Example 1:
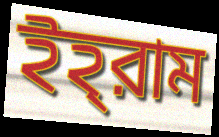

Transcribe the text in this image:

ইহ্‌রাম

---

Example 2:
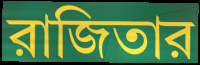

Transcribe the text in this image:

রাজিতার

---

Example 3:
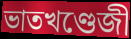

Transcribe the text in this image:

ভাতখণ্ডেজী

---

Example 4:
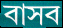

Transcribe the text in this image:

বাসব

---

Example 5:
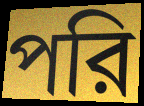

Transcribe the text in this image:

পরি